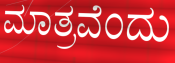
ಮಾತ್ರವೆಂದು